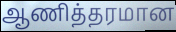
ஆணித்தரமான